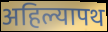
अहिल्यापथ